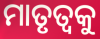
ମାତୃତ୍ବକୁ